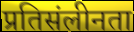
प्रतिसंलीनता